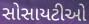
સોસાયટીઓ